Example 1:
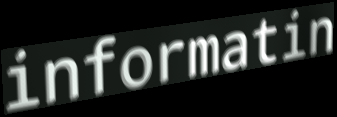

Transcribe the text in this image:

informatin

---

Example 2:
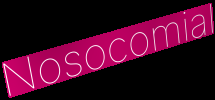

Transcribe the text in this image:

Nosocomial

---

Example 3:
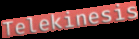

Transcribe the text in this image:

Telekinesis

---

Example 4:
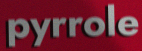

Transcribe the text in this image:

pyrrole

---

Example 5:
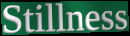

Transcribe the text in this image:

Stillness